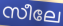
സീലേ